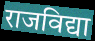
राजविद्या